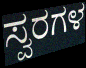
ಸ್ವರಗಳ